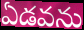
ఏడవను